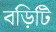
বড়িটি